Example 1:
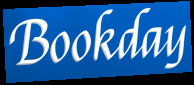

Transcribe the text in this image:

Bookday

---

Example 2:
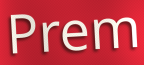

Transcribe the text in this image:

Prem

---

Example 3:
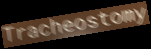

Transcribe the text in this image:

Tracheostomy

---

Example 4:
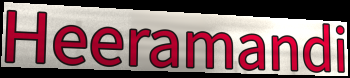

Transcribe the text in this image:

Heeramandi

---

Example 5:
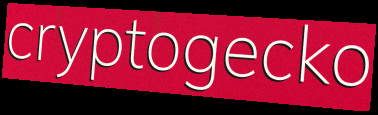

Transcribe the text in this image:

cryptogecko